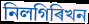
নিলগিৰিখন